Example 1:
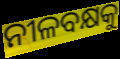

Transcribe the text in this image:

ନୀଳବକ୍ଷକୁ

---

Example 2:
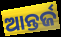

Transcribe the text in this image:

ଆନ୍ତର୍ଜ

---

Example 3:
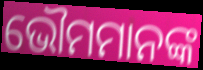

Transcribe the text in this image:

ଭୌମମାନଙ୍କ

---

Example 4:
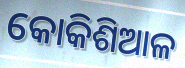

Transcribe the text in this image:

କୋକିଶିଆଳ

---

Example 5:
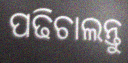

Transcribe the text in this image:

ପଢିଚାଲନ୍ତୁ